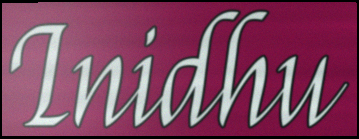
Inidhu